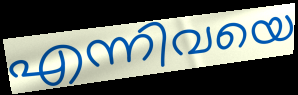
എന്നിവയെ